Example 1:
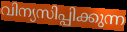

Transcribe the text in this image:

വിന്യസിപ്പിക്കുന്ന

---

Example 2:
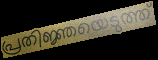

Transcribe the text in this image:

പ്രതിജ്ഞയെടുത്ത്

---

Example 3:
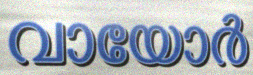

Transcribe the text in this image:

വായോർ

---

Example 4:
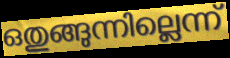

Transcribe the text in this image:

ഒതുങ്ങുന്നില്ലെന്ന്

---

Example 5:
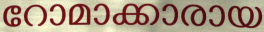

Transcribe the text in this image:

റോമാക്കാരായ